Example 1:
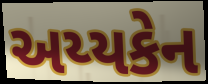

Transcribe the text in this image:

અય્યકેન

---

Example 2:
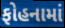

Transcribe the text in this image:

ફોહનામાં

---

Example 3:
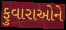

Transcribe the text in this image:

ફુવારાઓને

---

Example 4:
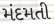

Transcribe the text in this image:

મંદમતી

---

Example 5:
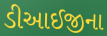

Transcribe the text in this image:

ડીઆઈજીના